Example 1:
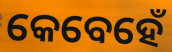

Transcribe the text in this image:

କେବେହେଁ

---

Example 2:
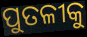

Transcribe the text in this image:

ପୁତଳୀକୁ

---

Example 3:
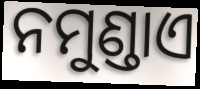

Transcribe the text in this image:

ନମୁଣ୍ଡାଏ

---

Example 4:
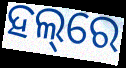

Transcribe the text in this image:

ହଲ୍‌ରେ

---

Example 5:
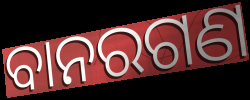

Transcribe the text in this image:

ବାନରଗଣ